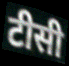
टीसी